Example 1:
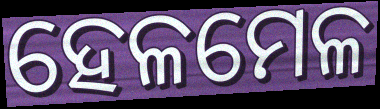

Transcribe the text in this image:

ହେଳମେଳ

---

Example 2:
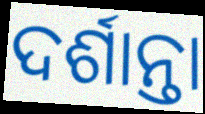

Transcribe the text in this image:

ଦର୍ଶାନ୍ତା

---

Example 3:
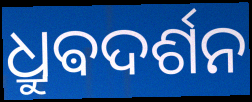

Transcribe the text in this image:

ଧ୍ରୁଵଦର୍ଶନ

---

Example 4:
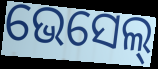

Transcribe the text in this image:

ଭେସେଲ୍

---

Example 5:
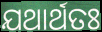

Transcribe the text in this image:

ଯଥାର୍ଥତଃ